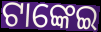
ଟାଙ୍କେଇ